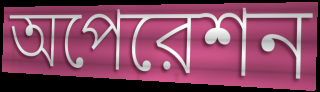
অপেরেশন